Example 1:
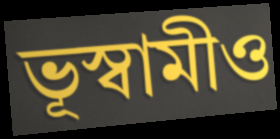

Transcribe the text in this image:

ভূস্বামীও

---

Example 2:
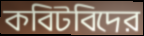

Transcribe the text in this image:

কবিটবিদের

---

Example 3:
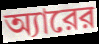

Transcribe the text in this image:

অ্যারের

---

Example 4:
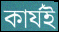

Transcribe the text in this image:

কার্যই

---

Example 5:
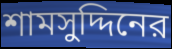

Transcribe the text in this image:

শামসুদ্দিনের